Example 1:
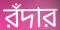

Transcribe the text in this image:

রঁদার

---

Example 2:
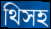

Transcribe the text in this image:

থিসহ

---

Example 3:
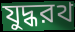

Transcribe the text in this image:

যুদ্ধরথ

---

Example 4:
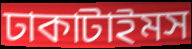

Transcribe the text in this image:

ঢাকাটাইমস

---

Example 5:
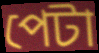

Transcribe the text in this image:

পেটা